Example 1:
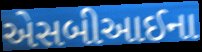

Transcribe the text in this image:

એસબીઆઈના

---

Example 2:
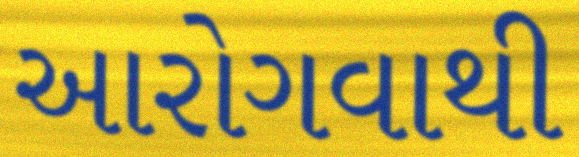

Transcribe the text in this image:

આરોગવાથી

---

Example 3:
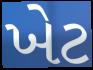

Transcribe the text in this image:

ખેટ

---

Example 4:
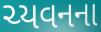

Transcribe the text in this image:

ચ્યવનના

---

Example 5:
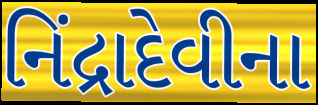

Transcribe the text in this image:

નિંદ્રાદેવીના